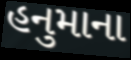
હનુમાના